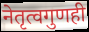
नेतृत्वगुणही